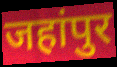
जहांपुर